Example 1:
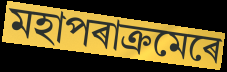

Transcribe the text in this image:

মহাপৰাক্ৰমেৰে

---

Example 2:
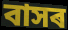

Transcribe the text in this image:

বাসৰ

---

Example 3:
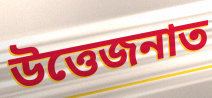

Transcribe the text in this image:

উত্তেজনাত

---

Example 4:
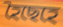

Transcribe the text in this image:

হৈছেহে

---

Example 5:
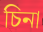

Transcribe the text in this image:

চিনা